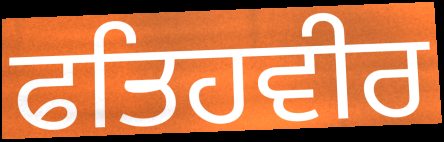
ਫਤਿਹਵੀਰ